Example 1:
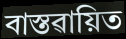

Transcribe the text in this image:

বাস্তৱায়িত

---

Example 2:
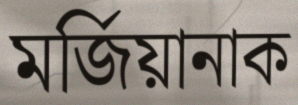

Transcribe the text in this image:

মৰ্জিয়ানাক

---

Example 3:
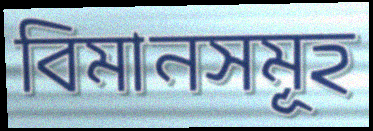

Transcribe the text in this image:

বিমানসমূহ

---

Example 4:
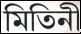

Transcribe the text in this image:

মিতিনী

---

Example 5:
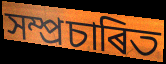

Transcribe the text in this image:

সম্প্ৰচাৰিত